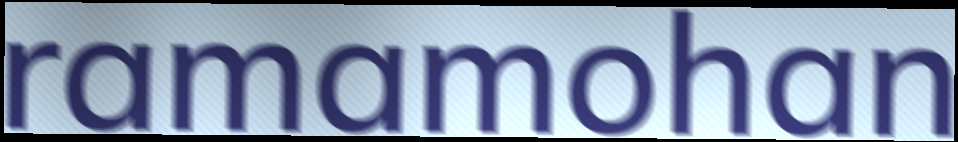
ramamohan